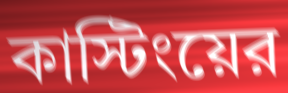
কাস্টিংয়ের